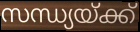
സന്ധ്യയ്ക്ക്